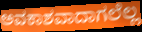
ಅವಕಾಶವಾದಾಗಲೆಲ್ಲ